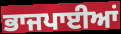
ਭਾਜਪਾਈਆਂ